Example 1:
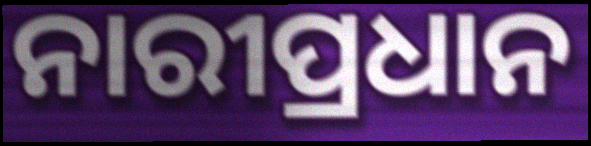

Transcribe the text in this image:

ନାରୀପ୍ରଧାନ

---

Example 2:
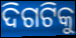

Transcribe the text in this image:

ଦିଗଟିକୁ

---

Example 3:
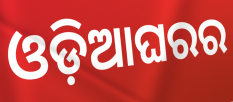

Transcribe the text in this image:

ଓଡ଼ିଆଘରର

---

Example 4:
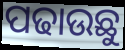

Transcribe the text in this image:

ପଢାଉଛୁ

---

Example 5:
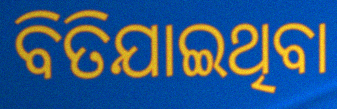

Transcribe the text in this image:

ବିତିଯାଇଥିବା